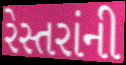
રેસ્તરાંની